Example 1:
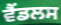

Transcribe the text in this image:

ਵੈਂਡਲਸ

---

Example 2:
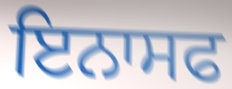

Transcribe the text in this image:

ਇਨਾਸਫ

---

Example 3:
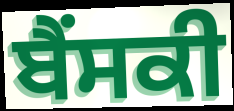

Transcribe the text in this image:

ਬੈਂਸਕੀ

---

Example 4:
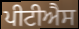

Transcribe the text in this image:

ਪੀਟੀਐਸ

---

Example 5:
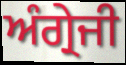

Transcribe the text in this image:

ਅੰਗ੍ਰੇਜੀ